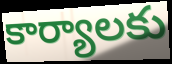
కార్యాలకు